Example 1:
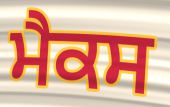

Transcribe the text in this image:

ਮੈਕਸ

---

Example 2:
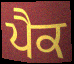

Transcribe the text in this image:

ਪੈਕ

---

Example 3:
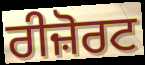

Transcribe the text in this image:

ਰੀਜ਼ੋਰਟ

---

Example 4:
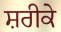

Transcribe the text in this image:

ਸ਼ਰੀਕੇ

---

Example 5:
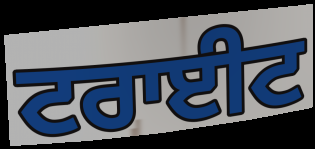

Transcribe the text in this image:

ਟਰਾਈਟ